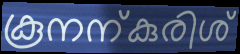
കൂനന്കുരിശ്